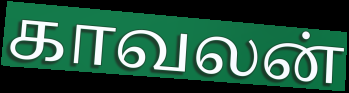
காவலன்